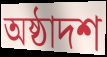
অষ্ঠাদশ